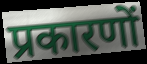
प्रकारणों